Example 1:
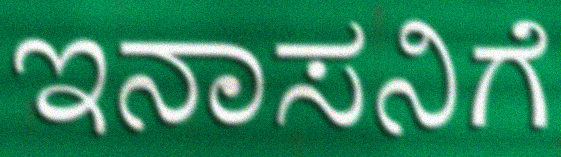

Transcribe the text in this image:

ಇನಾಸನಿಗೆ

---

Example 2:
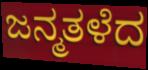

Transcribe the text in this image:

ಜನ್ಮತಳೆದ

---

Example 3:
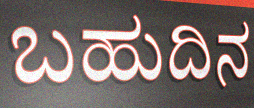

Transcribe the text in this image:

ಬಹುದಿನ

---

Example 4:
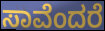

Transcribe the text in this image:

ಸಾವೆಂದರೆ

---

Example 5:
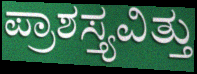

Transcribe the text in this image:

ಪ್ರಾಶಸ್ತ್ಯವಿತ್ತು